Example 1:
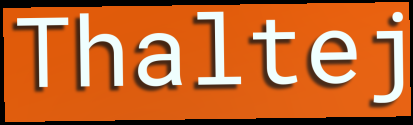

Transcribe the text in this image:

Thaltej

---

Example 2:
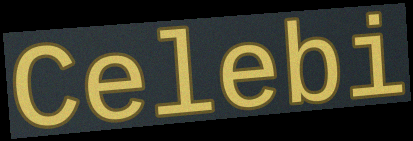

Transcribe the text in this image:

Celebi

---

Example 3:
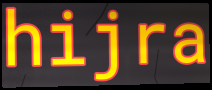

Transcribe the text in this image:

hijra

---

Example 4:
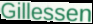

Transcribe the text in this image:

Gillessen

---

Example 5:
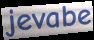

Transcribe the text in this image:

jevabe